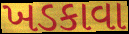
ખડકાવા